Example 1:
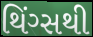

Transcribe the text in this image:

થિંગ્સથી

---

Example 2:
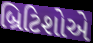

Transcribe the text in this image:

બ્રિટિશોએ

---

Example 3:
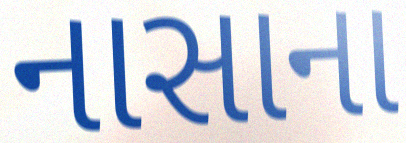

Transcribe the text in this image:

નાસાના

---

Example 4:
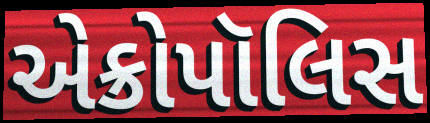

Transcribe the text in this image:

એક્રોપૉલિસ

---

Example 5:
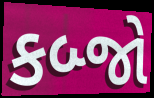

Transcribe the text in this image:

કબ્જો